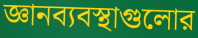
জ্ঞানব্যবস্থাগুলোর